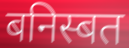
बनिस्बत